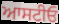
ਆਸਟੀਓ